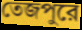
তেজপুরে